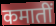
कमातीं